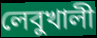
লেবুখালী